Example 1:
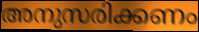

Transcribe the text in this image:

അനുസരിക്കണം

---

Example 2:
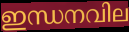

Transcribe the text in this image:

ഇന്ധനവില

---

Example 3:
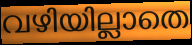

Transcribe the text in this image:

വഴിയില്ലാതെ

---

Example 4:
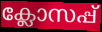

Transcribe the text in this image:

ക്ലോസപ്പ്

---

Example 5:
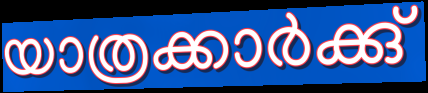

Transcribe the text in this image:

യാത്രക്കാർക്കു്